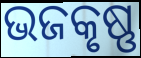
ଭଜକୃଷ୍ଣ